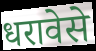
धरावेसे